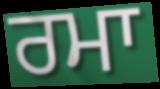
ਰਮਾ